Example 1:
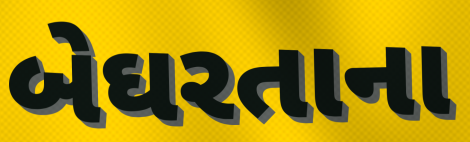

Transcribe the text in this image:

બેઘરતાના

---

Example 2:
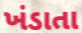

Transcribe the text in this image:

ખંડાતા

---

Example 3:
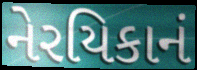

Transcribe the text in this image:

નેરયિકાનં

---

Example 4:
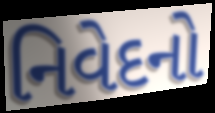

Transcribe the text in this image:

નિવેદનો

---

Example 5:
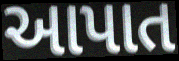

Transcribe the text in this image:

આપાત